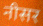
नीसर